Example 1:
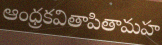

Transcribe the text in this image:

ఆంధ్రకవితాపితామహ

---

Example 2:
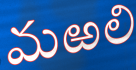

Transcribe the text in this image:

మఱలి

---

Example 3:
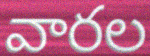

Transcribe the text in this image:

వారల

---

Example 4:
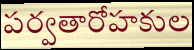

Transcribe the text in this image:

పర్వతారోహకుల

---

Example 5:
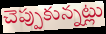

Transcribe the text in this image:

చెప్పుకున్నట్లు